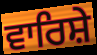
ਵਾਰਿਸ਼ੇ